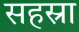
सहस्रा